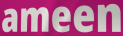
ameen